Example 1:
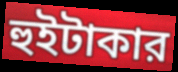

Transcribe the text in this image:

হুইটাকার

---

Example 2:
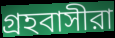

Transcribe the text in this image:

গ্রহবাসীরা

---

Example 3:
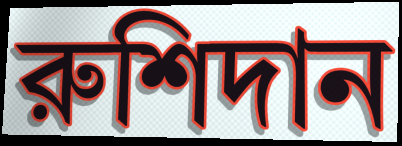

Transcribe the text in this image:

রুশিদান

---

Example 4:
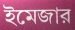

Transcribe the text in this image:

ইমেজার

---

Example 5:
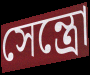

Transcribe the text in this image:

সেন্ত্রো